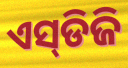
ଏସ୍‌ଡିଜି